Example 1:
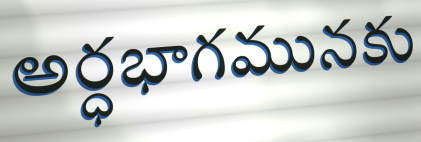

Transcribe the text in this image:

అర్ధభాగమునకు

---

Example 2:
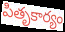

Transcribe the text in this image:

పితృకార్యం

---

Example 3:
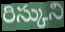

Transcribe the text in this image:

రిస్కుని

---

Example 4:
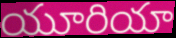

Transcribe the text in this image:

యూరియా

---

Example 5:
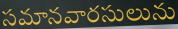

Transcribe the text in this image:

సమానవారసులును